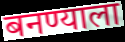
बनण्याला